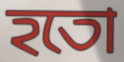
হতো